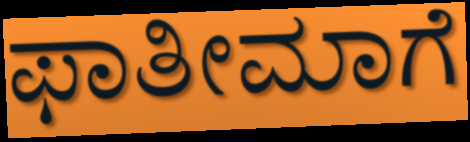
ಫಾತೀಮಾಗೆ